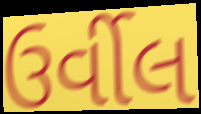
ઉર્વીલ